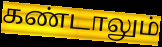
கண்டாலும்